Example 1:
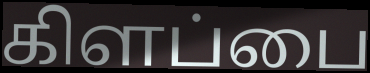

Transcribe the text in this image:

கிளப்பை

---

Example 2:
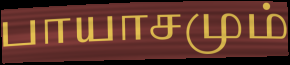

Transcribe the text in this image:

பாயாசமும்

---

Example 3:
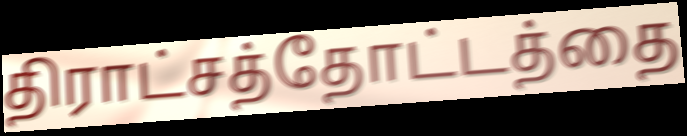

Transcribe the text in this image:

திராட்சத்தோட்டத்தை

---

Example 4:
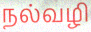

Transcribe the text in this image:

நல்வழி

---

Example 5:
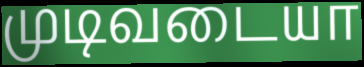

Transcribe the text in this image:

முடிவடையா